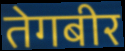
तेगबीर